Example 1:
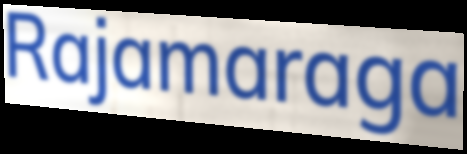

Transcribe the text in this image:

Rajamaraga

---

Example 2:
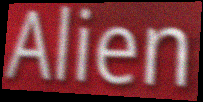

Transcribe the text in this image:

Alien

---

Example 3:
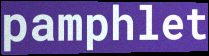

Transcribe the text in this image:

pamphlet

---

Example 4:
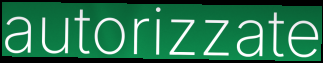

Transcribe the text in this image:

autorizzate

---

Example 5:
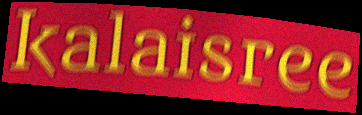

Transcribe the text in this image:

kalaisree